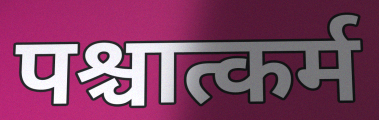
पश्चात्कर्म